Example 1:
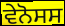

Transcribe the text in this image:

ਵੇਨੋਸਸ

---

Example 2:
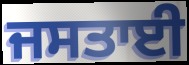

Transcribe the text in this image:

ਜਸਤਾਈ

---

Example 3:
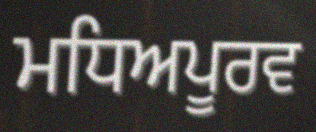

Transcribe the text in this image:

ਮਧਿਅਪੂਰਵ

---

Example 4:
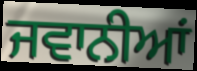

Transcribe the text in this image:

ਜਵਾਨੀਆਂ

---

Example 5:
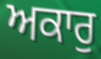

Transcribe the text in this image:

ਅਕਾਰੁ